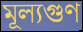
মূল্যগুণ